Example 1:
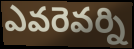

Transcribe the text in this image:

ఎవరెవర్ని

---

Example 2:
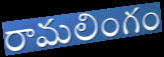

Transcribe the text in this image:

రామలింగం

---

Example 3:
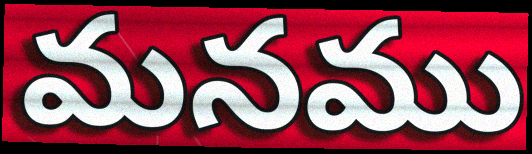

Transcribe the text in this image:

మనము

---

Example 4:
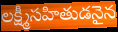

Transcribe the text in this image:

లక్ష్మీసహితుడనైన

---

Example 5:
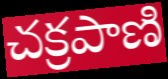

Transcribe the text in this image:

చక్రపాణి